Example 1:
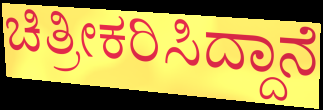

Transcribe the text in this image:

ಚಿತ್ರೀಕರಿಸಿದ್ದಾನೆ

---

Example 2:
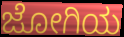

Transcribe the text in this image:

ಜೋಗಿಯ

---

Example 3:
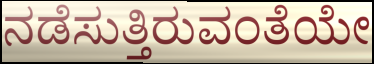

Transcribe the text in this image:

ನಡೆಸುತ್ತಿರುವಂತೆಯೇ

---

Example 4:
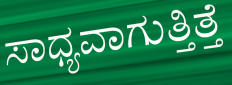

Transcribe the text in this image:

ಸಾಧ್ಯವಾಗುತ್ತಿತ್ತೆ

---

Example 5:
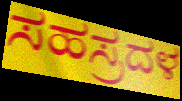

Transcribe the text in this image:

ಸಹಸ್ರದಳ